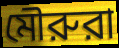
মৌরুরা